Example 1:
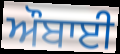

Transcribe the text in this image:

ਔਬਾਈ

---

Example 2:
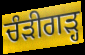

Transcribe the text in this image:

ਚੰੜੀਗੜ੍ਹ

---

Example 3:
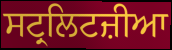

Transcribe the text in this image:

ਸਟ੍ਰਲਿਟਜ਼ੀਆ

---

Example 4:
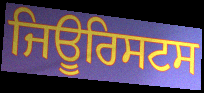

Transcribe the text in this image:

ਜਿਊਰਿਸਟਸ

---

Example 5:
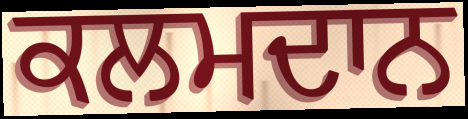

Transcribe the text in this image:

ਕਲਮਦਾਨ